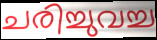
ചരിച്ചുവച്ച